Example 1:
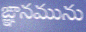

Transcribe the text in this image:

ఙ్ఞానమును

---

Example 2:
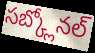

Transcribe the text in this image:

సబ్క్లోనల్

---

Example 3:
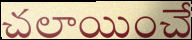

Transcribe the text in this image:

చలాయించే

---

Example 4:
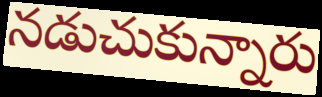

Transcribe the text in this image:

నడుచుకున్నారు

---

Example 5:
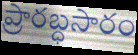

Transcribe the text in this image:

ప్రారబ్ధసారం